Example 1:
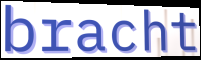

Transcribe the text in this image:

bracht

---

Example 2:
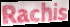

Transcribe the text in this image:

Rachis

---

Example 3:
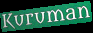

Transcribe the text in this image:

Kuruman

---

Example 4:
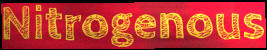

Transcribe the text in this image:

Nitrogenous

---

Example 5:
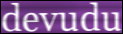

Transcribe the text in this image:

devudu